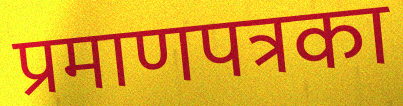
प्रमाणपत्रका